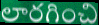
లారగించి